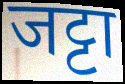
जट्टा